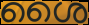
ശൈ